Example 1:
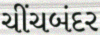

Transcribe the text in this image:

ચીંચબંદર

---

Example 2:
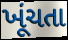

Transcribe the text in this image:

ખૂંચતા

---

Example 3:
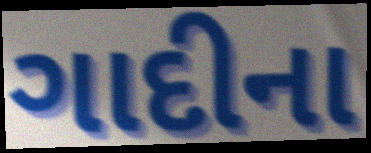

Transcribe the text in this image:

ગાદીના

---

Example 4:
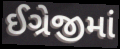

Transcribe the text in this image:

ઈગ્રેજીમાં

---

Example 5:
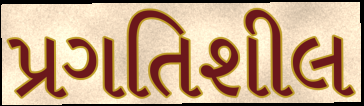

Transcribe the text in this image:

પ્રગતિશીલ